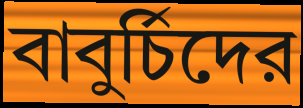
বাবুর্চিদের